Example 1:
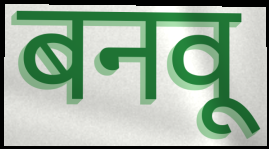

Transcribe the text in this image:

बनवू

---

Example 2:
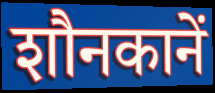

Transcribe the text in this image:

शौनकानें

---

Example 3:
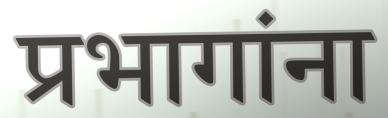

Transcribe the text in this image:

प्रभागांना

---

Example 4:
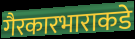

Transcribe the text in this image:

गैरकारभाराकडे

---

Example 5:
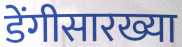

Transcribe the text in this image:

डेंगीसारख्या